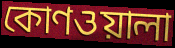
কোণওয়ালা